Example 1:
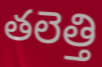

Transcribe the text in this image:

తలెత్తి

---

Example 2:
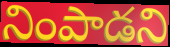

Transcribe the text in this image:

నింపాడని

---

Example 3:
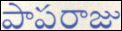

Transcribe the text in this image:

పాపరాజు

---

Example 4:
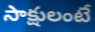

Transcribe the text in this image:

సాక్షులంటే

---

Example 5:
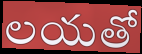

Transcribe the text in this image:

లయతో